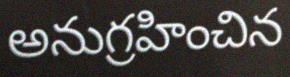
అనుగ్రహించిన